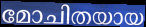
മോചിതയായ